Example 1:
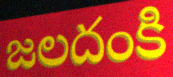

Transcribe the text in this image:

జలదంకి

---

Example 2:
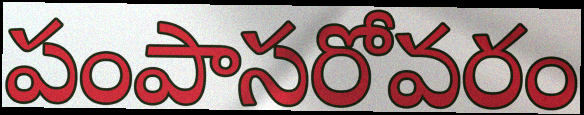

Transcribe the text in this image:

పంపాసరోవరం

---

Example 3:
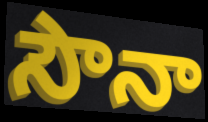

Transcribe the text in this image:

సౌనా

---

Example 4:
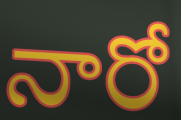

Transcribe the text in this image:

నారో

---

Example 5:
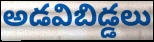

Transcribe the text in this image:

అడవిబిడ్డలు